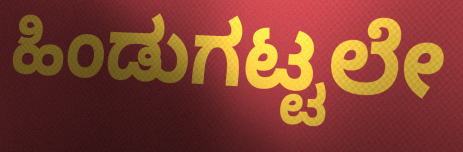
ಹಿಂಡುಗಟ್ಟಲೇ